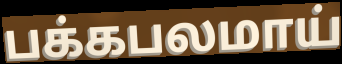
பக்கபலமாய்